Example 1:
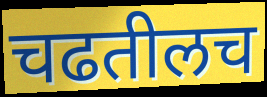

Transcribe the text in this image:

चढतीलच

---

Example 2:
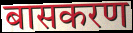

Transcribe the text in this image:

बासकरण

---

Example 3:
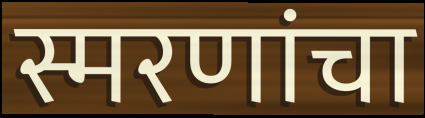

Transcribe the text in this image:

स्मरणांचा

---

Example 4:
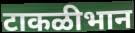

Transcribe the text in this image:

टाकळीभान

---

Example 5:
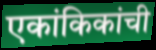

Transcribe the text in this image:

एकांकिकांची